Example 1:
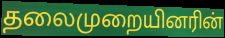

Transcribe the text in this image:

தலைமுறையினரின்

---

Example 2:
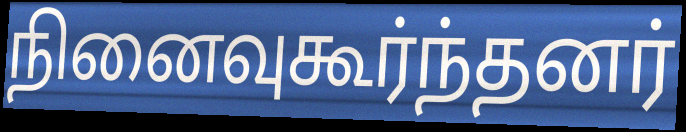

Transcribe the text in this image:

நினைவுகூர்ந்தனர்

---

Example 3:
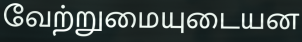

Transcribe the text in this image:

வேற்றுமையுடையன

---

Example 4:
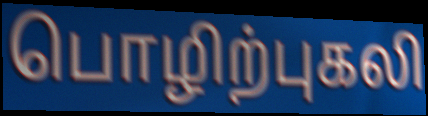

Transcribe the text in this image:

பொழிற்புகலி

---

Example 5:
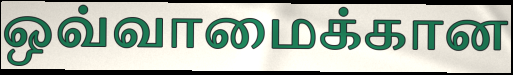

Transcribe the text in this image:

ஒவ்வாமைக்கான